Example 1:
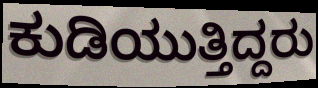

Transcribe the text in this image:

ಕುಡಿಯುತ್ತಿದ್ದರು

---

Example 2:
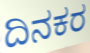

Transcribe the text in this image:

ದಿನಕರ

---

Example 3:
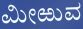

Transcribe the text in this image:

ಮೀಱುವ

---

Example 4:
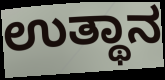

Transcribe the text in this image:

ಉತ್ಥಾನ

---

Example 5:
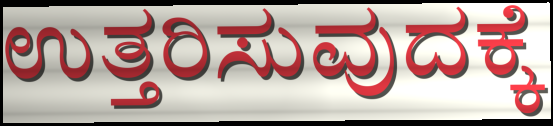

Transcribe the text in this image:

ಉತ್ತರಿಸುವುದಕ್ಕೆ